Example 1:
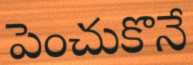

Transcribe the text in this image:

పెంచుకొనే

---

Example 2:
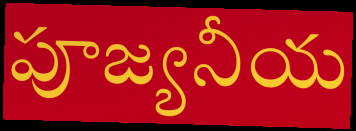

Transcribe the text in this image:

పూజ్యనీయ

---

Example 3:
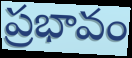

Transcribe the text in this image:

ప్రభావం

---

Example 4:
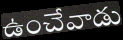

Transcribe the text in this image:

ఉంచేవాడు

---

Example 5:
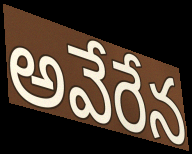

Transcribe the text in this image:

అవేరేన